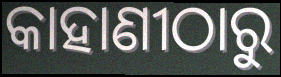
କାହାଣୀଠାରୁ